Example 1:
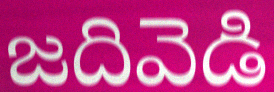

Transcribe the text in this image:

జదివెడి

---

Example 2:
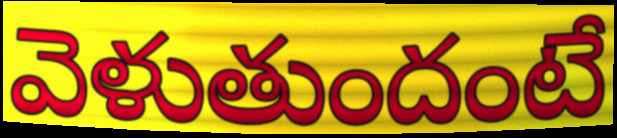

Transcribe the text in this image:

వెళుతుందంటే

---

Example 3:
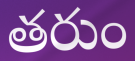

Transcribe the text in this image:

తరుం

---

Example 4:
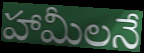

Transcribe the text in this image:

హామీలనే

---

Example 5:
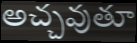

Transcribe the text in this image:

అచ్చవుతూ